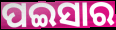
ପଇସାର